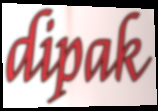
dipak